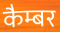
कैम्बर